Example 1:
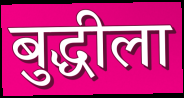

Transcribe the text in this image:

बुद्धीला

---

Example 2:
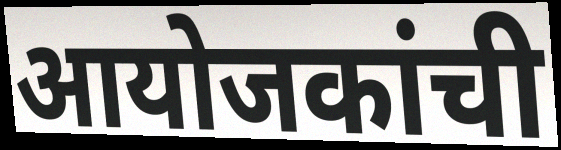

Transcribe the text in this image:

आयोजकांची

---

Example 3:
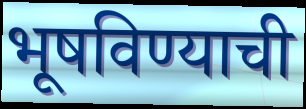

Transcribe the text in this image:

भूषविण्याची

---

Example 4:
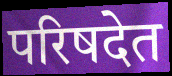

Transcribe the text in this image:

परिषदेत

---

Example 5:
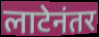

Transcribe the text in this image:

लाटेनंतर